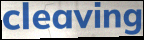
cleaving